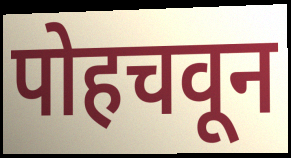
पोहचवून